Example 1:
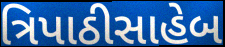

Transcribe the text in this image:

ત્રિપાઠીસાહેબ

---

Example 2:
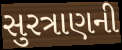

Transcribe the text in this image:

સુરત્રાણની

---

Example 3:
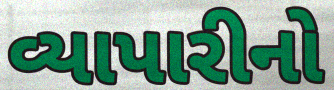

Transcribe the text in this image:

વ્યાપારીનો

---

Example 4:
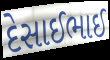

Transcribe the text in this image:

દેસાઈભાઈ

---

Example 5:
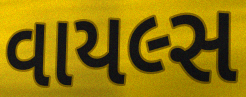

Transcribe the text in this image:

વાયલ્સ